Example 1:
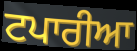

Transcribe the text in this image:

ਟਪਾਰੀਆ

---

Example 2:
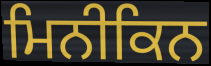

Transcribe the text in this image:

ਮਿਨੀਕਿਨ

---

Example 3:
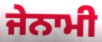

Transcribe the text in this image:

ਜੇਨਾਮੀ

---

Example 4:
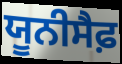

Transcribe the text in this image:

ਯੂਨੀਸੈਫ਼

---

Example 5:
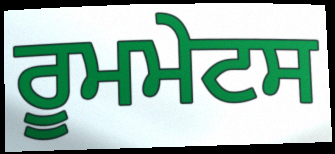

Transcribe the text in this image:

ਰੂਮਮੇਟਸ